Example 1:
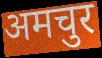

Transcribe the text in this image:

अमचुर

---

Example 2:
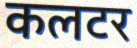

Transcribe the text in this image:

कलटर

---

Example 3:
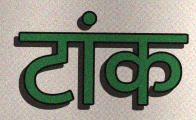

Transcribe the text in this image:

टांक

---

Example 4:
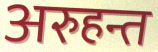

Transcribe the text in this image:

अरुहन्त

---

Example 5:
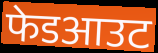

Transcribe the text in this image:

फेडआउट